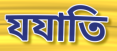
যযাতি